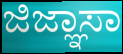
ಜಿಜ್ಞಾಸಾ